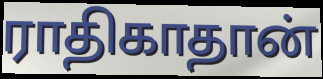
ராதிகாதான்